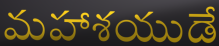
మహాశయుడే